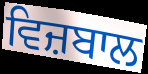
ਵਿਜ਼ਬਾਲ